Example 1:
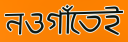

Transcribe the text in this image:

নওগাঁতেই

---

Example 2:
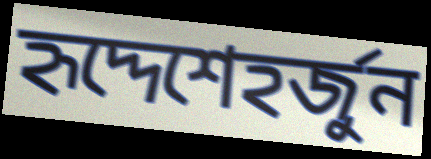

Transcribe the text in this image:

হৃদ্দেশেহর্জুন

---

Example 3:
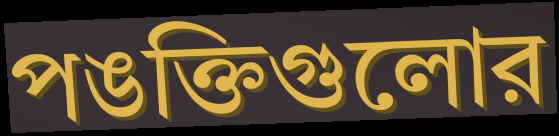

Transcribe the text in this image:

পঙক্তিগুলোর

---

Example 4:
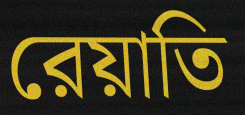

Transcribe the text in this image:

রেয়াতি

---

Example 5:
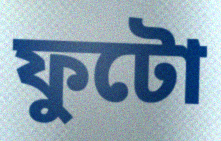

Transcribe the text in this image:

ফুটো